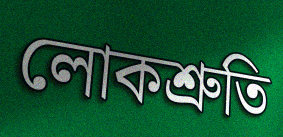
লোকশ্রুতি